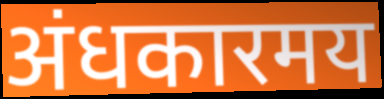
अंधकारमय